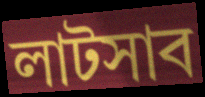
লাটসাব